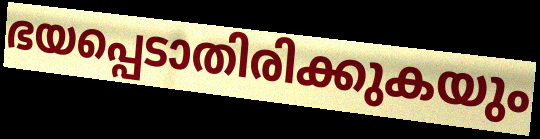
ഭയപ്പെടാതിരിക്കുകയും